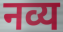
नव्य